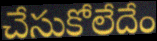
చేసుకోలేదేం